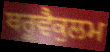
ਥਰੂਵੈਕੁਲਮ